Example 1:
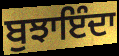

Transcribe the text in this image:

ਬੁਝਾਇੰਦਾ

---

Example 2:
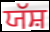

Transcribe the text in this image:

ਯੱਸ਼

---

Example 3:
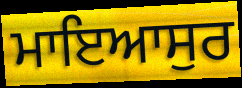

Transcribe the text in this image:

ਮਾਇਆਸੁਰ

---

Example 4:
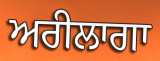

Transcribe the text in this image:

ਅਰੀਲਾਗਾ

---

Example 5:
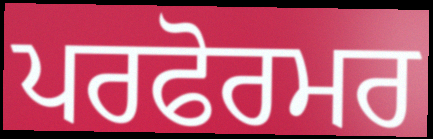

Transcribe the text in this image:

ਪਰਫੋਰਮਰ